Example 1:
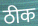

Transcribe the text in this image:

ठीक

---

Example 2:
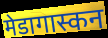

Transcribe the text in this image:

मेडागास्कन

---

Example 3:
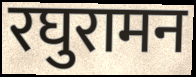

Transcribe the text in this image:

रघुरामन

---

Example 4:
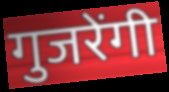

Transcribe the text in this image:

गुजरेंगी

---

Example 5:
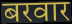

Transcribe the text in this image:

बरवार